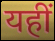
यहीं